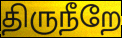
திருநீறே